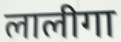
लालीगा